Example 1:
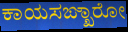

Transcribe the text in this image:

ಕಾಯಸಙ್ಖಾರೋ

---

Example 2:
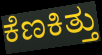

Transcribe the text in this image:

ಕೆಣಕಿತ್ತು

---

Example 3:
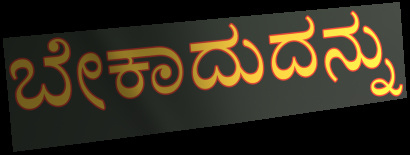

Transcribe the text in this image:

ಬೇಕಾದುದನ್ನು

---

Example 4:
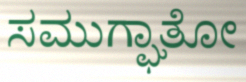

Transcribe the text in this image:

ಸಮುಗ್ಘಾತೋ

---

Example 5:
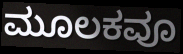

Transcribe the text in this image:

ಮೂಲಕವೂ